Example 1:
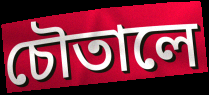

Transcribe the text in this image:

চৌতালে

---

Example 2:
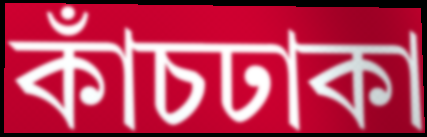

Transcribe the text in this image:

কাঁচঢাকা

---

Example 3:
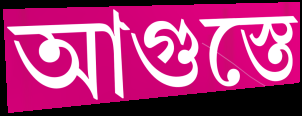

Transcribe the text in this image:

আগুস্তে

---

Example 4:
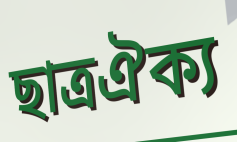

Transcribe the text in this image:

ছাত্রঐক্য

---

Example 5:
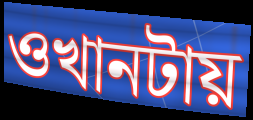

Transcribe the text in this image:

ওখানটায়